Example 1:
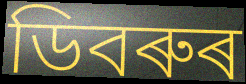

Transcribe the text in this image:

ডিবৰুৰ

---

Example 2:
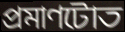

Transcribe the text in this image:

প্ৰমাণটোত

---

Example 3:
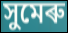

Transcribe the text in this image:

সুমেৰু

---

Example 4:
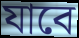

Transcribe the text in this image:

যাবে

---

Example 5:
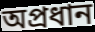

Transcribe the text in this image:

অপ্ৰধান